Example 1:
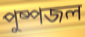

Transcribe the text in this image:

পুষ্পজল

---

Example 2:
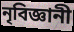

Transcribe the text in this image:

নৃবিজ্ঞানী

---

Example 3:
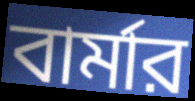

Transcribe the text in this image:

বার্মার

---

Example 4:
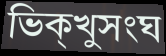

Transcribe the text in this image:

ভিক্খুসংঘ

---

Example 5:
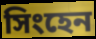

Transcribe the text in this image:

সিংহেন